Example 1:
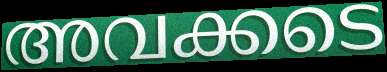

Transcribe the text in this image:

അവക്കടെ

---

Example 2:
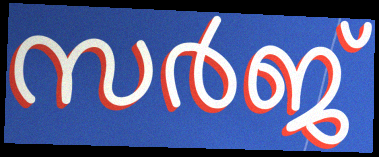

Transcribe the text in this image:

സർജ്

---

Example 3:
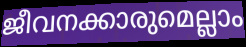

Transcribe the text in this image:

ജീവനക്കാരുമെല്ലാം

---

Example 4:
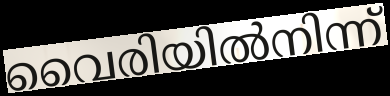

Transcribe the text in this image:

വൈരിയിൽനിന്ന്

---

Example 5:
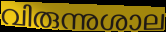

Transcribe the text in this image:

വിരുന്നുശാല